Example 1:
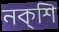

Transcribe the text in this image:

নক্‌শি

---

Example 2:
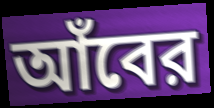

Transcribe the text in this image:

আঁবের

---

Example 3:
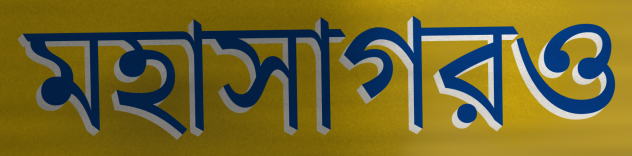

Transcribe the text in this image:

মহাসাগরও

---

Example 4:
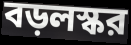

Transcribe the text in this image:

বড়লস্কর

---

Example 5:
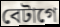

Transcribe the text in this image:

বেটাগে